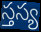
స్తస్య